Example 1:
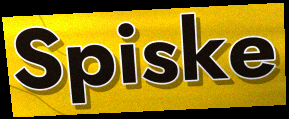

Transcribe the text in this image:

Spiske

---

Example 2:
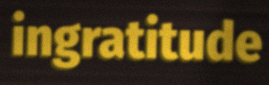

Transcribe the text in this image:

ingratitude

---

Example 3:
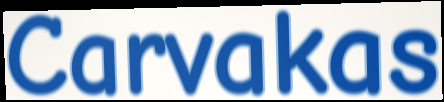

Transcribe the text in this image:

Carvakas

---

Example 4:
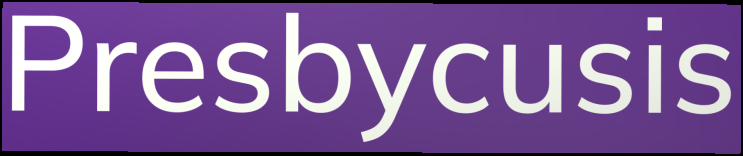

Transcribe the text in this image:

Presbycusis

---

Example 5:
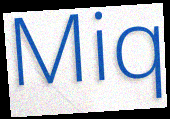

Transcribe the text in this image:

Miq